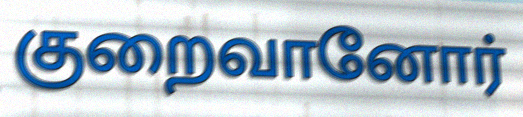
குறைவானோர்